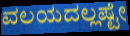
ವಲಯದಲ್ಲಷ್ಟೇ